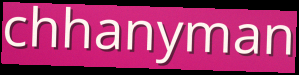
chhanyman